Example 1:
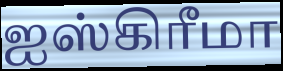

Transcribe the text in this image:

ஐஸ்கிரீமா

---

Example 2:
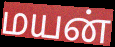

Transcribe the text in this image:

மயன்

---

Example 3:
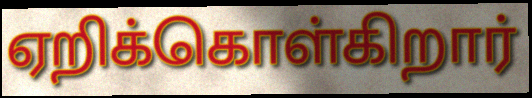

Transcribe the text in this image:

ஏறிக்கொள்கிறார்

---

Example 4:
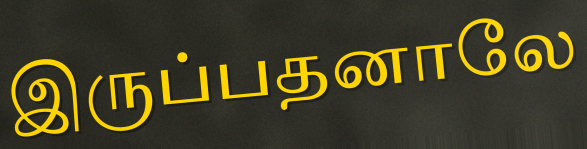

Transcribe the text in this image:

இருப்பதனாலே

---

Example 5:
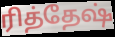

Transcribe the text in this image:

ரித்தேஷ்